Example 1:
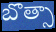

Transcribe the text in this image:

బొత్సా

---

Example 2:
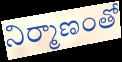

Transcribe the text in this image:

నిర్మాణంతో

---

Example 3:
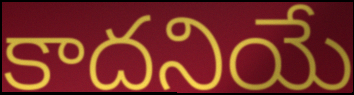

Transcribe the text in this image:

కాదనియే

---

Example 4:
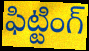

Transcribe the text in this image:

ఫిట్టింగ్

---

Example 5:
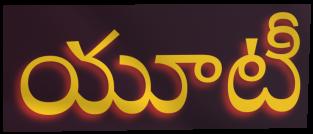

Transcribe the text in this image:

యూటీ